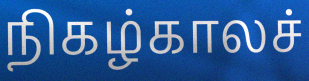
நிகழ்காலச்